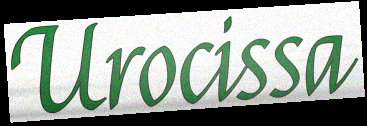
Urocissa